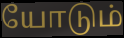
யோடும்